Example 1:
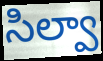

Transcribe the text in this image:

సిల్వా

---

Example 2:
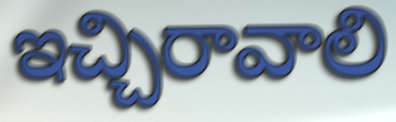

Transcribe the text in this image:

ఇచ్చిరావాలి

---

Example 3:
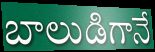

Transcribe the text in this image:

బాలుడిగానే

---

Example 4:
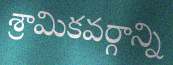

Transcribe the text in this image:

శ్రామికవర్గాన్ని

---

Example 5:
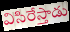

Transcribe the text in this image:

విసిరేస్తాడు